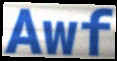
Awf